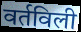
वर्तविली